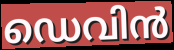
ഡെവിൻ